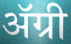
ॲग्री